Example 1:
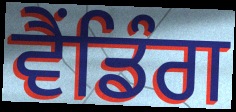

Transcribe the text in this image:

ਵੈਂਡਿੰਗ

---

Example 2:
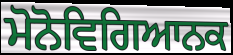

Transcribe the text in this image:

ਮੋਨੋਵਿਗਿਆਨਕ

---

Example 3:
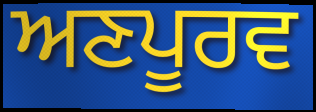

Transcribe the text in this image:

ਅਣਪੂਰਵ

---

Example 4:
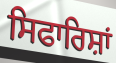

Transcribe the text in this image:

ਸਿਫਾਰਿਸ਼ਾਂ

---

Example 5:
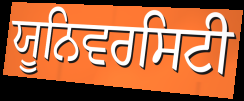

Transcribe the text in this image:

ਯੂਨਿਵਰਸਿਟੀ